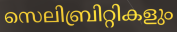
സെലിബ്രിറ്റികളും